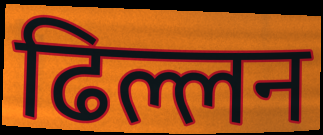
ढिल्लन